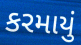
કરમાયું